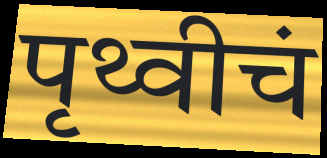
पृथ्वीचं